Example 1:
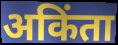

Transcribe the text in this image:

अकिंता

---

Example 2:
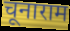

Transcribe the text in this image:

चूनाराम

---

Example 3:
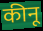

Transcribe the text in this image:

कीनू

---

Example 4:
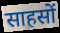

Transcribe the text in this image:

साहसों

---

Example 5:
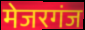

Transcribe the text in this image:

मेजरगंज